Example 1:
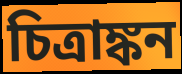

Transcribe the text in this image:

চিত্রাঙ্কন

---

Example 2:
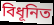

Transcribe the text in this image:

বিধূনিত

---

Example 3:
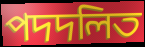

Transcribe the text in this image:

পদদলিত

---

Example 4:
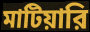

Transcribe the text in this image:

মাটিয়ারি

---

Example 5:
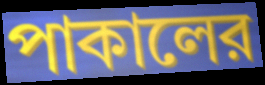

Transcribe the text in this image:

পাকালের